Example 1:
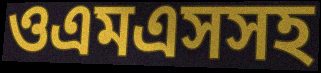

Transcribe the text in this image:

ওএমএসসহ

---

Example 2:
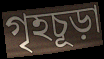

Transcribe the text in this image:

গৃহচূড়া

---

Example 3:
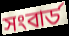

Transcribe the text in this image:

সংবার্ড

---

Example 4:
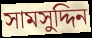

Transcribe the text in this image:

সামসুদ্দিন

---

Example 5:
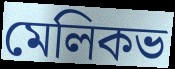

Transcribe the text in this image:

মেলিকভ